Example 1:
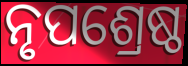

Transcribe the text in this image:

ନୃପଶ୍ରେଷ୍ଠ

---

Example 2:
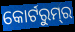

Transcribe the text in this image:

କୋର୍ଟରୁମ୍‌ର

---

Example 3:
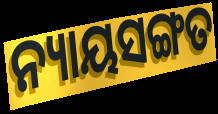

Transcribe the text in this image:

ନ୍ୟାୟସଙ୍ଗତ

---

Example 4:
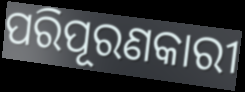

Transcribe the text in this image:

ପରିପୂରଣକାରୀ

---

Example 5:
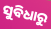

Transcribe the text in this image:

ସୁବିଧାରୁ